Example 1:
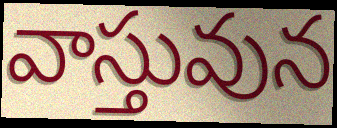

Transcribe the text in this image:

వాస్తువున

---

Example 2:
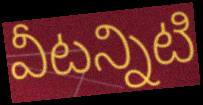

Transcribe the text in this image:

వీటన్నిటి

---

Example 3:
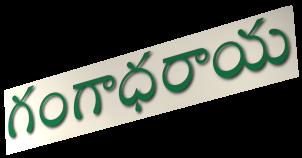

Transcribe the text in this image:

గంగాధరాయ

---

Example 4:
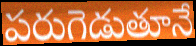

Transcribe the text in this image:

పరుగెడుతూనే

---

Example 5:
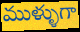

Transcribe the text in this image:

ముళ్ళుగా